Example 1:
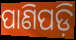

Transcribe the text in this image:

ପାଣିପଡ଼ି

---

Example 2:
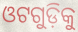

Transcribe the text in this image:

ଓଟଗୁଡ଼ିକୁ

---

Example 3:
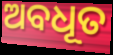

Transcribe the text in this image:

ଅବଧୂତ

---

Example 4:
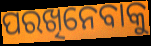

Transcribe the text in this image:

ପରଖିନେବାକୁ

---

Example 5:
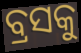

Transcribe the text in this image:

ବ୍ରସକୁ